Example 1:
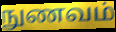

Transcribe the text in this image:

நுணவம்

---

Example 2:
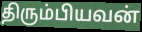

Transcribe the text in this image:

திரும்பியவன்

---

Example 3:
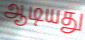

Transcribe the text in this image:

ஆடியது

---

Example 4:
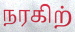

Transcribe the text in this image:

நரகிற்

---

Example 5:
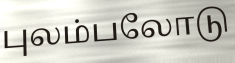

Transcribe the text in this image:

புலம்பலோடு